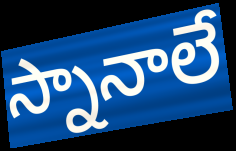
స్నానాలే